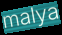
malya